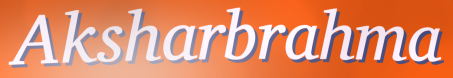
Aksharbrahma